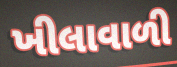
ખીલાવાળી